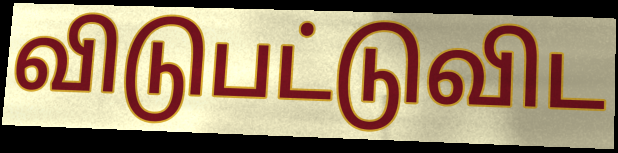
விடுபட்டுவிட